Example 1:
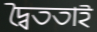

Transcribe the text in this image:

দ্বৈততাই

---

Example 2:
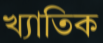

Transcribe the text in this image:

খ্যাতিক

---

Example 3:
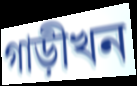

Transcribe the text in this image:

গাড়ীখন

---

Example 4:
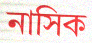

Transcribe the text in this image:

নাসিক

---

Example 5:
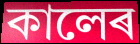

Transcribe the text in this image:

কালেৰ